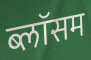
ब्लॉसम